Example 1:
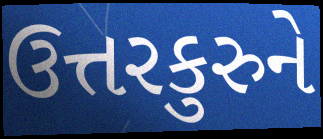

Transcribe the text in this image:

ઉત્તરકુરુને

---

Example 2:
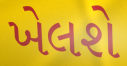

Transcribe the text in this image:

ખેલશે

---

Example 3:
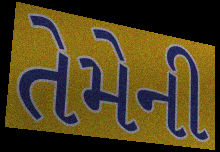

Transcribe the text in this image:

તેમેની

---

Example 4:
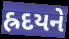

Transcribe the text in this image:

હ્રદયને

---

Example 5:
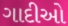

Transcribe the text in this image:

ગાદીઓ